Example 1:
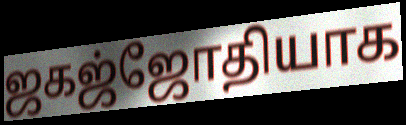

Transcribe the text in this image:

ஜகஜ்ஜோதியாக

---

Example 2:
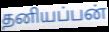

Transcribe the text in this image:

தனியப்பன்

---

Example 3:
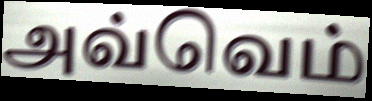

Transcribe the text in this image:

அவ்வெம்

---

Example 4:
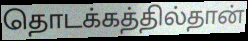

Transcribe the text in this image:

தொடக்கத்தில்தான்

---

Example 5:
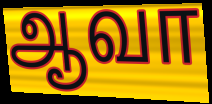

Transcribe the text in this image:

ஆவா